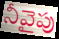
నీవైపు